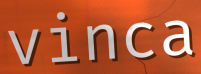
vinca